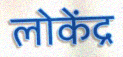
लोकेंद्र